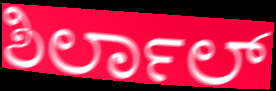
ಶಿರ್ಲಾಲ್